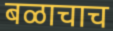
बळाचाच